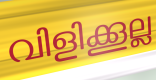
വിളിക്കൂല്ല